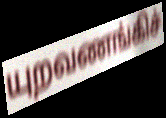
யுறவணங்கிச்